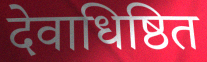
देवाधिष्ठित